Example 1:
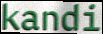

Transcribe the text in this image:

kandi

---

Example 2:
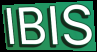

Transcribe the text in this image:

IBIS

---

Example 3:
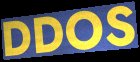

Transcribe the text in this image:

DDOS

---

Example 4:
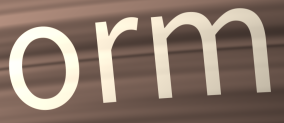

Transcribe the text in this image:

orm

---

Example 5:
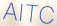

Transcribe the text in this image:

AITC